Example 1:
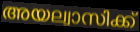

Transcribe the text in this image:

അയല്വാസിക്ക്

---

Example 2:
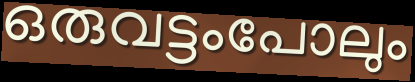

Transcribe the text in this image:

ഒരുവട്ടംപോലും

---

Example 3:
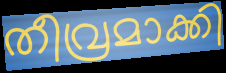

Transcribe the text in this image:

തീവ്രമാക്കി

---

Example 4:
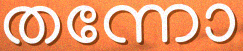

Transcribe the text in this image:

തന്നോ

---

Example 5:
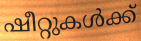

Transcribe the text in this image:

ഷീറ്റുകൾക്ക്